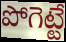
పోగెట్టే